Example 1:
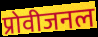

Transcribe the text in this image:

प्रोवीजनल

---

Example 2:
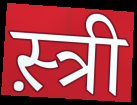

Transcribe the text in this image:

स़्त्री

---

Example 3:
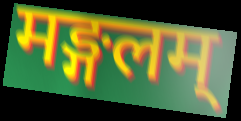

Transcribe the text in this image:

मङ्गलम्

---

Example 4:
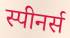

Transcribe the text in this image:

स्पीनर्स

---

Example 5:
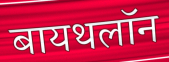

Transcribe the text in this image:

बायथलॉन